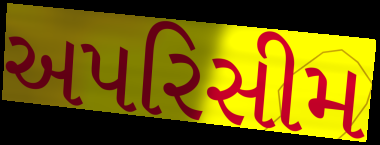
અપરિસીમ